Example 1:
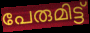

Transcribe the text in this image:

പേരുമിട്ട്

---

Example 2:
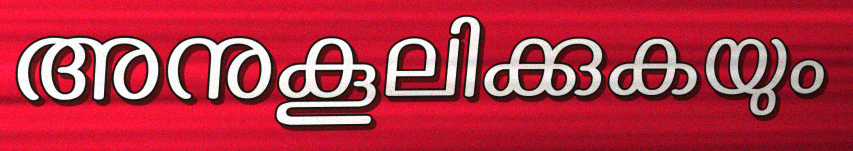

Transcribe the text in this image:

അനുകൂലിക്കുകയും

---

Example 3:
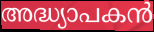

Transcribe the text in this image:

അദ്ധ്യാപകൻ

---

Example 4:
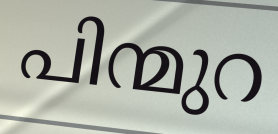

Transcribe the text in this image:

പിന്മുറ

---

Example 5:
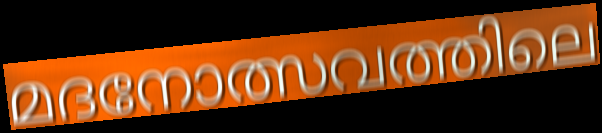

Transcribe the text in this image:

മദനോത്സവത്തിലെ